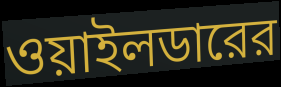
ওয়াইলডারের